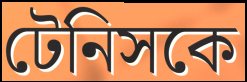
টেনিসকে